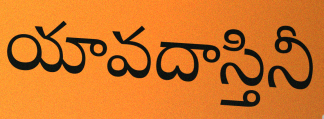
యావదాస్తినీ